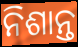
ନିଶାନ୍ତ